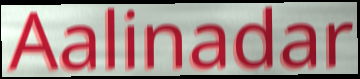
Aalinadar